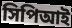
সিপিআই